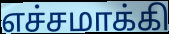
எச்சமாக்கி